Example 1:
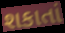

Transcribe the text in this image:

શકાતાં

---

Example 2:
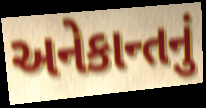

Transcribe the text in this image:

અનેકાન્તનું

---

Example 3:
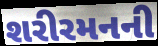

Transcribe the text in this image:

શરીરમનની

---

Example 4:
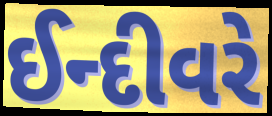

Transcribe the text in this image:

ઈન્દીવરે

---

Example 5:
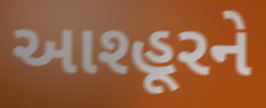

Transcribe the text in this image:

આશ્હૂરને